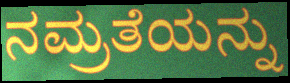
ನಮ್ರತೆಯನ್ನು